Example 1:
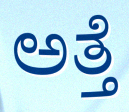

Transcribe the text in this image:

ಅತ್ತೆ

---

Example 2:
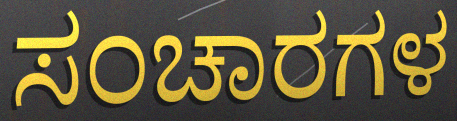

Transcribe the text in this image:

ಸಂಚಾರಗಳ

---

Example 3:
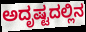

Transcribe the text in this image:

ಅದೃಷ್ಟದಲ್ಲಿನ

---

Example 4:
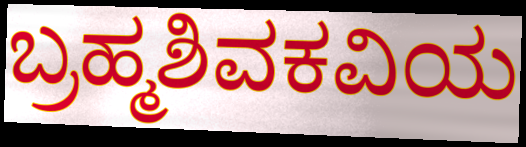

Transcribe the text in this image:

ಬ್ರಹ್ಮಶಿವಕವಿಯ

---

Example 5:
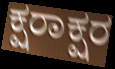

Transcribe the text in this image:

ಕ್ಷರಾಕ್ಷರ